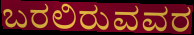
ಬರಲಿರುವವರ